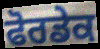
ਫੋਰਡੇਕ